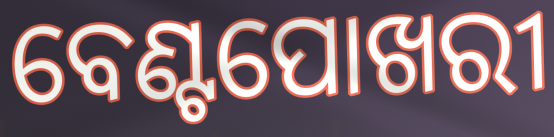
ବେଣ୍ଟପୋଖରୀ